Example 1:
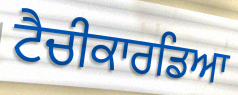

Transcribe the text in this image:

ਟੈਚੀਕਾਰਡਿਆ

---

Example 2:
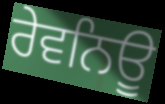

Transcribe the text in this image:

ਰੇਵਨਿਊ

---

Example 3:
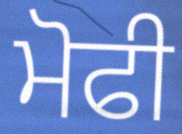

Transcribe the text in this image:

ਮੋਫੀ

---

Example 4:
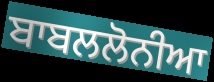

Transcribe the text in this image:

ਬਾਬਲਲੋਨੀਆ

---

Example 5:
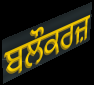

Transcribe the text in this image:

ਬਲੌਕਰਜ਼